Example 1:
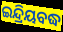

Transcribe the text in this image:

ଇନ୍ଦ୍ରିୟବଦ୍ଧ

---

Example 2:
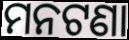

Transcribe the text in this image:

ମନଟଣା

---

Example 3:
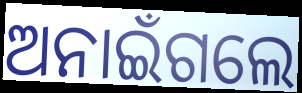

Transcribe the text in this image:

ଅନାଇଁଗଲେ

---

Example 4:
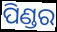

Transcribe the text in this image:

ପିଣ୍ଡର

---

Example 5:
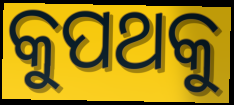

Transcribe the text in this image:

କୁପଥକୁ